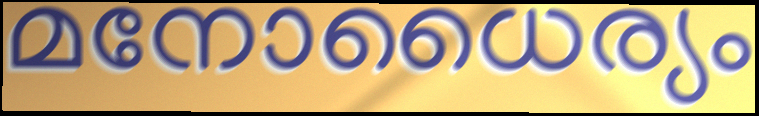
മനോധൈര്യം